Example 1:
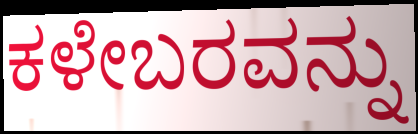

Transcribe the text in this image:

ಕಳೇಬರವನ್ನು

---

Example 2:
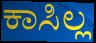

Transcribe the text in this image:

ಕಾಸಿಲ್ಲ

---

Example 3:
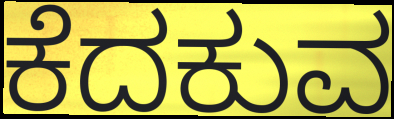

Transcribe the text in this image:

ಕೆದಕುವ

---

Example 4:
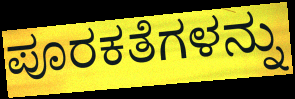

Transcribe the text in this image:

ಪೂರಕತೆಗಳನ್ನು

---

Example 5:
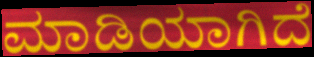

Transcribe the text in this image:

ಮಾಡಿಯಾಗಿದೆ